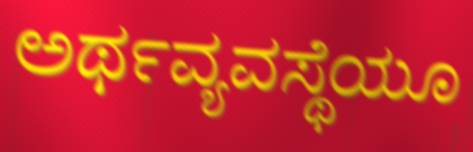
ಅರ್ಥವ್ಯವಸ್ಥೆಯೂ